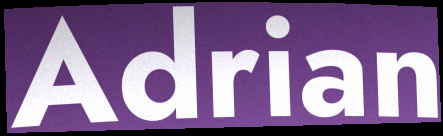
Adrian